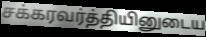
சக்கரவர்த்தியினுடைய